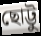
ছোট্টু